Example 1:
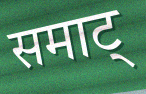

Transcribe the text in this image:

समाट्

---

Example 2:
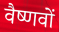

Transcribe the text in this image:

वैष्णवों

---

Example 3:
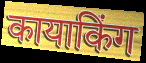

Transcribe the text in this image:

कायाकिंग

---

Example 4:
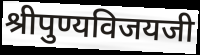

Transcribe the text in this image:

श्रीपुण्यविजयजी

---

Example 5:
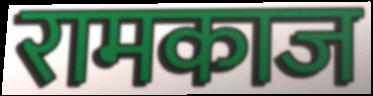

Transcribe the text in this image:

रामकाज